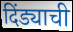
दिंड्याची